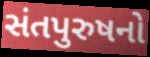
સંતપુરુષનો